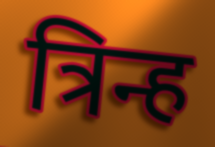
त्रिन्ह